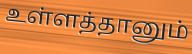
உள்ளத்தானும்